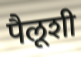
पैलूशी